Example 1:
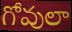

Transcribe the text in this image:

గోవులా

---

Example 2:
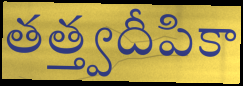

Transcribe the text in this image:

తత్త్వదీపికా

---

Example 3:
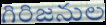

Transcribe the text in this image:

గిరిజనుల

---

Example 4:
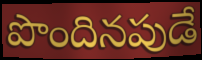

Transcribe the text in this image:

పొందినపుడే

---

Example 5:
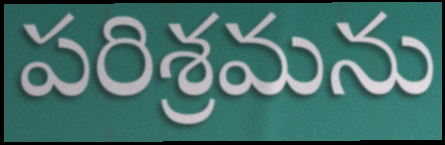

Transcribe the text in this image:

పరిశ్రమను